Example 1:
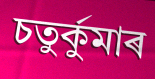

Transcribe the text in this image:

চতুৰ্কুমাৰ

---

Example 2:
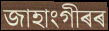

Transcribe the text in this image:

জাহাংগীৰৰ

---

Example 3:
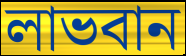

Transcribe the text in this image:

লাভবান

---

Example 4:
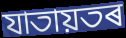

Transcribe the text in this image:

যাতায়তৰ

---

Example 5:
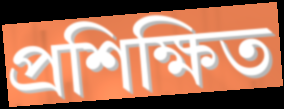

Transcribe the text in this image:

প্ৰশিক্ষিত